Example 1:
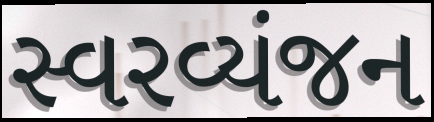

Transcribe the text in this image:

સ્વરવ્યંજન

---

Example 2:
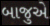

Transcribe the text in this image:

બાજુએ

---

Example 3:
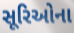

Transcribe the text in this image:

સૂરિઓના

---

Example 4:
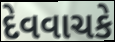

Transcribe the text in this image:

દેવવાચકે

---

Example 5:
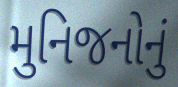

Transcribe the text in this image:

મુનિજનોનું